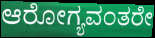
ಆರೋಗ್ಯವಂತರೇ